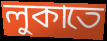
লুকাতে